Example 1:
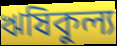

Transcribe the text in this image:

ঋষিকুল্য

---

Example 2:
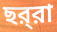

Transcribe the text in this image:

ছর্‌রা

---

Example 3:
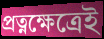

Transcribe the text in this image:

প্রত্নক্ষেত্রেই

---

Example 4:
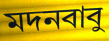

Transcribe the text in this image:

মদনবাবু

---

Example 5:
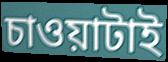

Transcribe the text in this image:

চাওয়াটাই